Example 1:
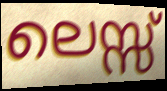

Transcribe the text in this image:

ലെസ്സ്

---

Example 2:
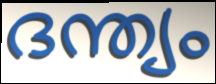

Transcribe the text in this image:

ദന്ത്യം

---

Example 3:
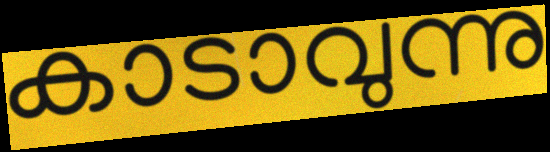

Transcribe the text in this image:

കാടാവുന്നു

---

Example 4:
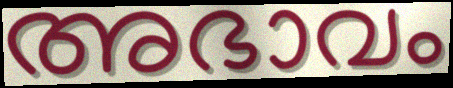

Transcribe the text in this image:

അഭാവം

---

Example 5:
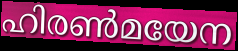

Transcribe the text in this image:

ഹിരൺമയേന